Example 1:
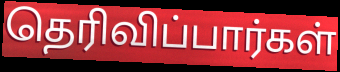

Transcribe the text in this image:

தெரிவிப்பார்கள்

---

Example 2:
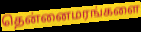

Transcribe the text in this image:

தென்னைமரங்களை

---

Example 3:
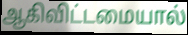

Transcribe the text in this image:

ஆகிவிட்டமையால்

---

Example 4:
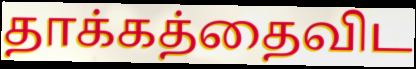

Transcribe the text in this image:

தாக்கத்தைவிட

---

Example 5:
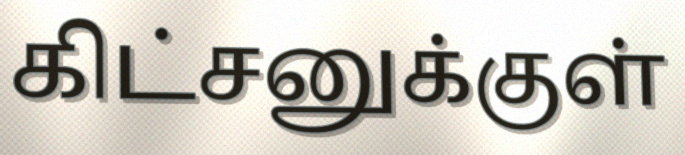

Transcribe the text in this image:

கிட்சனுக்குள்